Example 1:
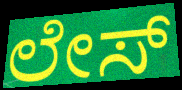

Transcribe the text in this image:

ಲೇಸ್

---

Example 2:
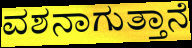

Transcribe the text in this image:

ವಶನಾಗುತ್ತಾನೆ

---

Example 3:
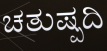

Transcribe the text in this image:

ಚತುಷ್ಪದಿ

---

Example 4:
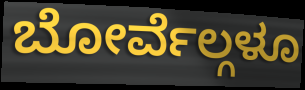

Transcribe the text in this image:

ಬೋರ್ವೆಲ್ಗಳೂ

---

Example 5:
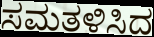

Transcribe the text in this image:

ಸಮತಳಿಸಿದ